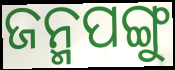
ଜନ୍ମପଙ୍ଗୁ